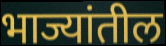
भाज्यांतील